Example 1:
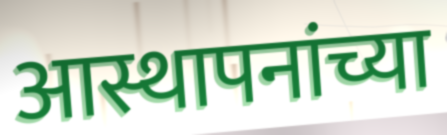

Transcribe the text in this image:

आस्थापनांच्या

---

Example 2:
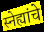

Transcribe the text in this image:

स्नेह्यांचे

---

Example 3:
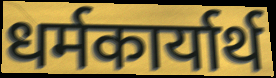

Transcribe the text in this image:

धर्मकार्यार्थ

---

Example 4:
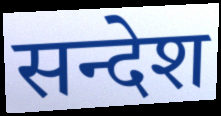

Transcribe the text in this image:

सन्देश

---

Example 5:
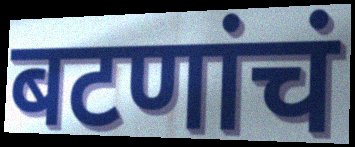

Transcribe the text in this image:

बटणांचं